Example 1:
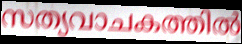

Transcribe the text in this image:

സത്യവാചകത്തിൽ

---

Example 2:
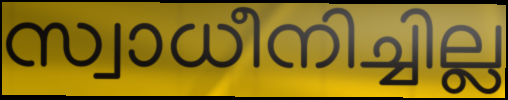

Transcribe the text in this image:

സ്വാധീനിച്ചില്ല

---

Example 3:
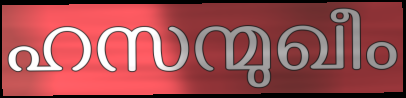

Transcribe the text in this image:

ഹസന്മുഖീം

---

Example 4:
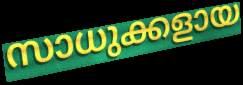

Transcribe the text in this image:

സാധുക്കളായ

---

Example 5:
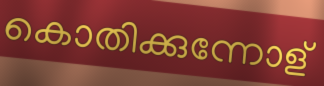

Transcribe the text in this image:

കൊതിക്കുന്നോള്